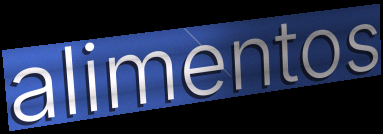
alimentos